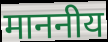
माननीय